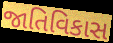
જાતિવિકાસ